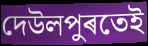
দেউলপুৰতেই